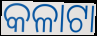
କଳାଟା